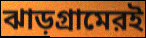
ঝাড়গ্রামেরই